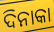
ଦିନାକା